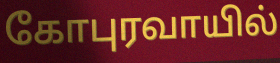
கோபுரவாயில்